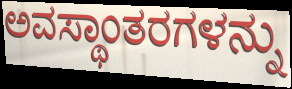
ಅವಸ್ಥಾಂತರಗಳನ್ನು